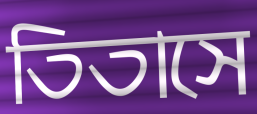
তিতাসে